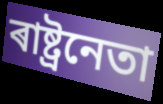
ৰাষ্ট্ৰনেতা